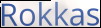
Rokkas